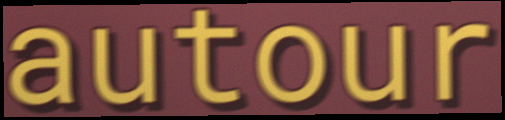
autour